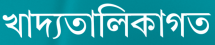
খাদ্যতালিকাগত